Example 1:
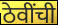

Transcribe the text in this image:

ठेवींची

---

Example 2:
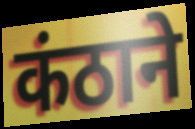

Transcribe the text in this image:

कंठाने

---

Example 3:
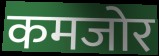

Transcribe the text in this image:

कमजोर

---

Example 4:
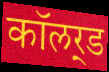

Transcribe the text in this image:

कॉलर्ड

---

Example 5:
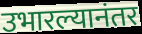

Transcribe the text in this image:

उभारल्यानंतर